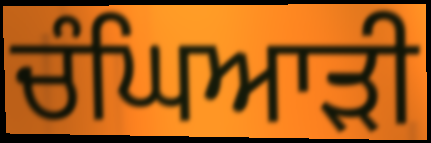
ਚੰਘਿਆੜੀ